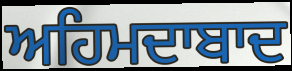
ਅਹਿਮਦਾਬਾਦ